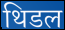
थिडल